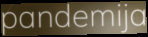
pandemija